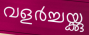
വളർച്ചയ്ക്കു